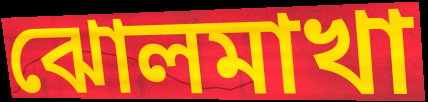
ঝোলমাখা